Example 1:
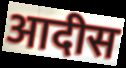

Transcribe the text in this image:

आदीस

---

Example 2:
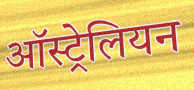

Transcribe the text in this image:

ऑस्ट्रेलियन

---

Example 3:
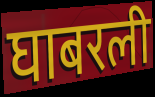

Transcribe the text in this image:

घाबरली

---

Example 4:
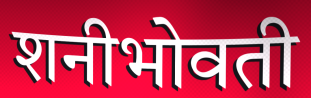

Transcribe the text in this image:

शनीभोवती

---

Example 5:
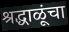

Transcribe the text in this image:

श्रद्धाळूंचा